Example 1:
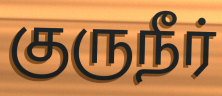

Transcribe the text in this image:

குருநீர்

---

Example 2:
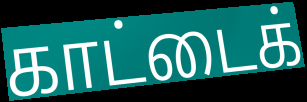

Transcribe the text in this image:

காட்டைக்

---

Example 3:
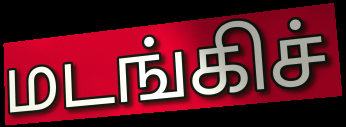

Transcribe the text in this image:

மடங்கிச்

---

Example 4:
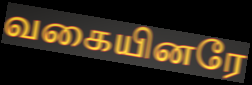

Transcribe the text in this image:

வகையினரே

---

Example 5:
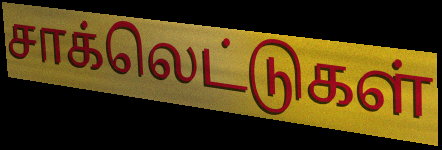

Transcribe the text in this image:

சாக்லெட்டுகள்